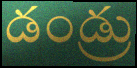
డండ్రు